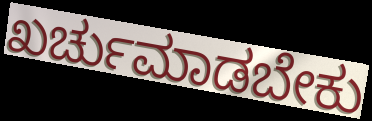
ಖರ್ಚುಮಾಡಬೇಕು